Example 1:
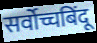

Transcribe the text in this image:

सर्वोच्चबिंदू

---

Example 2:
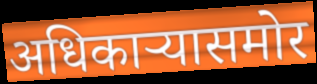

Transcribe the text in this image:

अधिकाऱ्यासमोर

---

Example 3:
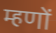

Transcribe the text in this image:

म्हणों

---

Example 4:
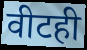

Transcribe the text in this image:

वीटही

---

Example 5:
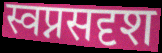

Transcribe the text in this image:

स्वप्नसदृश